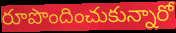
రూపొందించుకున్నారో